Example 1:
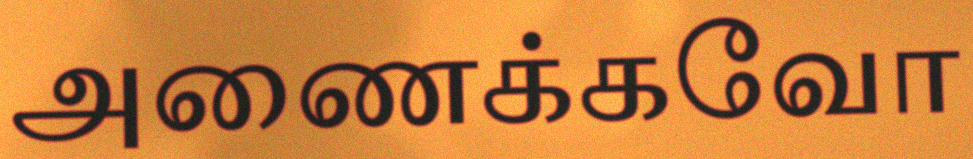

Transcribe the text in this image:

அணைக்கவோ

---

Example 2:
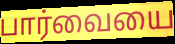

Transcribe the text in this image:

பார்வையை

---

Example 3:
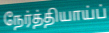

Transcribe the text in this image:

நேர்த்தியாய்ப்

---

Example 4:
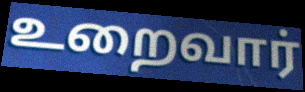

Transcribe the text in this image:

உறைவார்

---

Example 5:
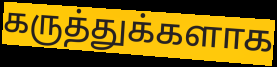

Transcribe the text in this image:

கருத்துக்களாக